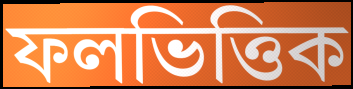
ফলভিত্তিক